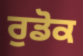
ਰੁਡੋਕ